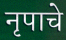
नृपाचे